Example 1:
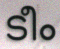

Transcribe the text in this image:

ടീം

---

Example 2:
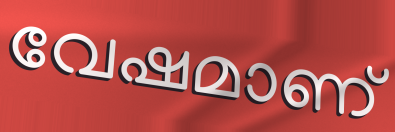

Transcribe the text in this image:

വേഷമാണ്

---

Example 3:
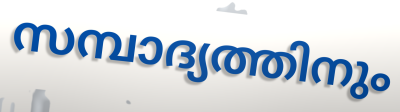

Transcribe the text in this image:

സമ്പാദ്യത്തിനും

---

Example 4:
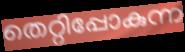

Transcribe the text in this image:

തെറ്റിപ്പോകുന്ന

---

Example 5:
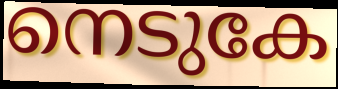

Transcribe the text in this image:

നെടുകേ